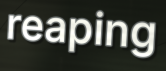
reaping